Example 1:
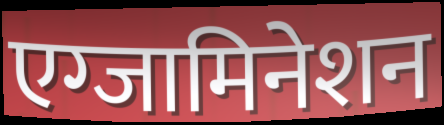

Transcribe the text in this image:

एग्‍जामिनेशन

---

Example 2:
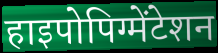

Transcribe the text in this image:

हाइपोपिग्मेंटेशन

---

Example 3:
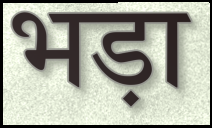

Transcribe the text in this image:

भड़ा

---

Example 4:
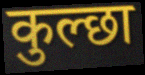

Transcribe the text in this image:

कुल्छा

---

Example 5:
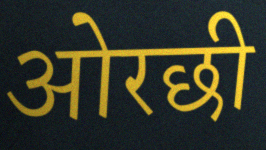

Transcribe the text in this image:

ओरछी